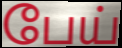
பேய்